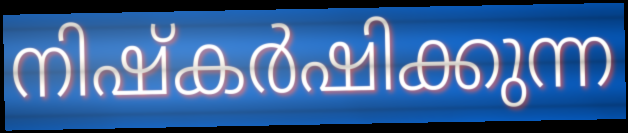
നിഷ്കർഷിക്കുന്ന